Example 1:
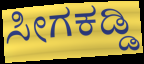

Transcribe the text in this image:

ಸೀಗಕಡ್ಡಿ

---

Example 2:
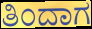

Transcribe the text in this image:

ತಿಂದಾಗ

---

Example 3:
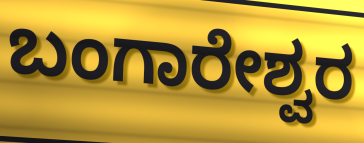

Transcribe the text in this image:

ಬಂಗಾರೇಶ್ವರ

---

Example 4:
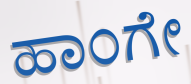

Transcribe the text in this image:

ಹಾಂಗೇ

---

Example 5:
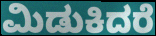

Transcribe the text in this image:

ಮಿಡುಕಿದರೆ